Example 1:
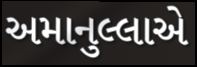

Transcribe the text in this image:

અમાનુલ્લાએ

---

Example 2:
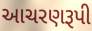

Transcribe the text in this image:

આચરણરૂપી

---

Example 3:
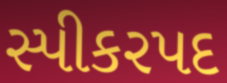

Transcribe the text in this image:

સ્પીકરપદ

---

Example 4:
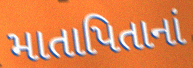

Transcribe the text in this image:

માતાપિતાનાં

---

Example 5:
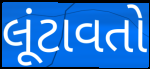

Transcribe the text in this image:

લૂંટાવતો